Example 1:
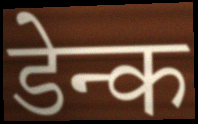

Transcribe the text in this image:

डेन्क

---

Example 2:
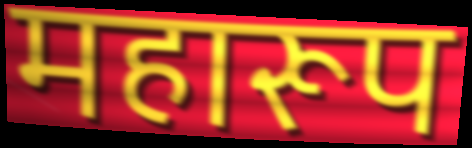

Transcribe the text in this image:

महारूप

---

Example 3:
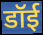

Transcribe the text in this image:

डॉई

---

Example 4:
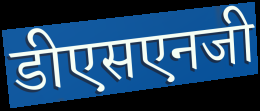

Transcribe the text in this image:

डीएसएनजी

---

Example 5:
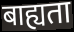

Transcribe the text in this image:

बाह्यता